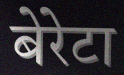
बेरेटा